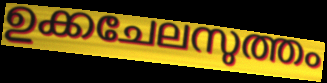
ഉക്കചേലസുത്തം